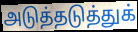
அடுத்தடுத்துக்